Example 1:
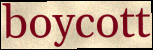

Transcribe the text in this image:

boycott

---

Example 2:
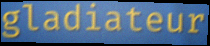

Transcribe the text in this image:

gladiateur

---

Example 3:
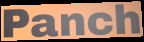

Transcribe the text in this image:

Panch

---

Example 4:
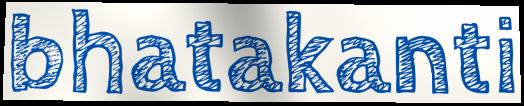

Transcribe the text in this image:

bhatakanti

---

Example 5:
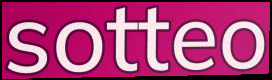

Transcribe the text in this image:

sotteo